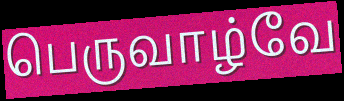
பெருவாழ்வே